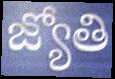
జ్యోతి